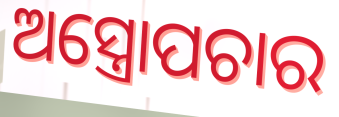
ଅସ୍ତ୍ରୋପଚାର